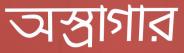
অস্ত্রাগার